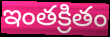
ఇంతక్రితం